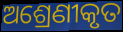
ଅଶ୍ରେଣୀକୃତ